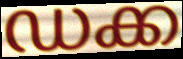
ഡക്ക